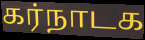
கர்நாடக